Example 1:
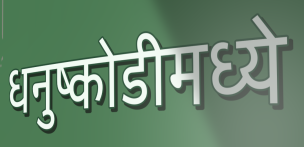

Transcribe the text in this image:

धनुष्कोडीमध्ये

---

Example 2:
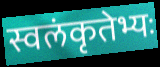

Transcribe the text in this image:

स्वलंकृतेभ्यः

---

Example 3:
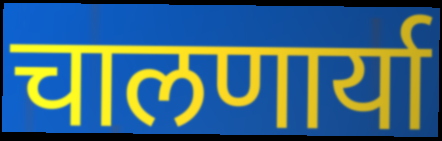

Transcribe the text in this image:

चालणार्या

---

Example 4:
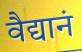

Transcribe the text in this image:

वैद्यानं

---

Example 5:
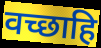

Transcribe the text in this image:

वच्छाहि